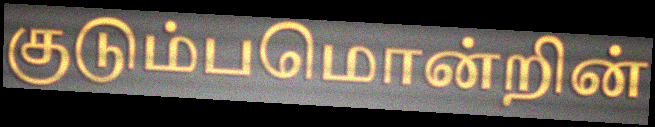
குடும்பமொன்றின்